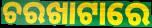
ଚରଖାଟାରେ